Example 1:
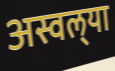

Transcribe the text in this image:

अस्वल्या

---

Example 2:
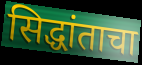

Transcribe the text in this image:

सिद्धांताचा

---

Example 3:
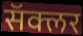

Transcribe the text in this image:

सॅक्लर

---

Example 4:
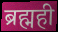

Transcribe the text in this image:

ब्रह्मही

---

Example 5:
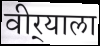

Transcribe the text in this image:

वीर्याला